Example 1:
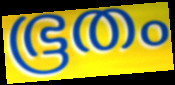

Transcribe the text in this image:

ഭൂതം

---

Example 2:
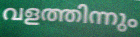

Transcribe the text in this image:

വളത്തിന്നും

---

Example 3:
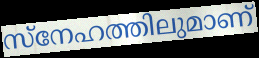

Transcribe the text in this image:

സ്നേഹത്തിലുമാണ്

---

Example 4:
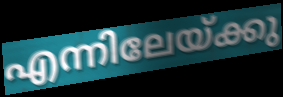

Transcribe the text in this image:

എന്നിലേയ്ക്കു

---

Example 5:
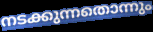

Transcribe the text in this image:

നടക്കുന്നതൊന്നും